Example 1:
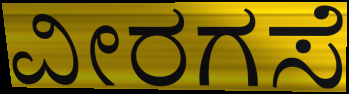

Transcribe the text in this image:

ವೀರಗಸೆ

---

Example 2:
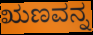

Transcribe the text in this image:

ಋಣವನ್ನ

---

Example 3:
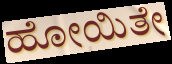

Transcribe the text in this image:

ಹೋಯಿತೇ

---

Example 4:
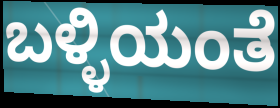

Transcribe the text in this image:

ಬಳ್ಳಿಯಂತೆ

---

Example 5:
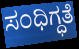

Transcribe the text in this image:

ಸಂಧಿಗ್ಧತೆ